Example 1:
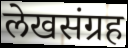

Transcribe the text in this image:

लेखसंग्रह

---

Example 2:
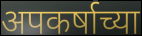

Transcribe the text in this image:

अपकर्षाच्या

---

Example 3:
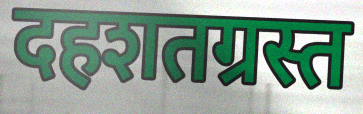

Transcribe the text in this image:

दहशतग्रस्त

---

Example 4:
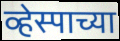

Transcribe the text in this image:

व्हेस्पाच्या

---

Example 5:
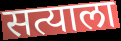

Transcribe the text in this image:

सत्याला